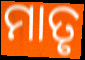
ମାତୃ